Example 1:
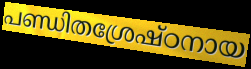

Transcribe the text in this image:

പണ്ഡിതശ്രേഷ്ഠനായ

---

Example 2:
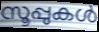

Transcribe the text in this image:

സൂപ്പുകൾ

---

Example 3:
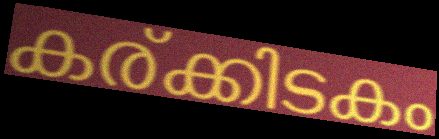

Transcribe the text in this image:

കര്ക്കിടകം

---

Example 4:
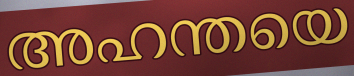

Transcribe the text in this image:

അഹന്തയെ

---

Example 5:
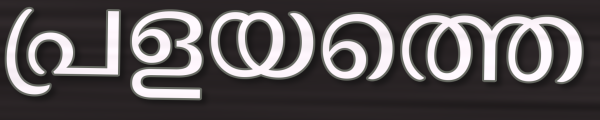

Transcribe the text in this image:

പ്രളയത്തെ